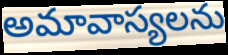
అమావాస్యలను